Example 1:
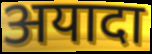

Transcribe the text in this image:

अयादा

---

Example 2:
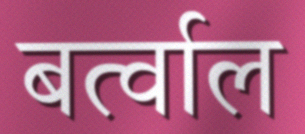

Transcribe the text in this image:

बर्त्वाल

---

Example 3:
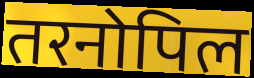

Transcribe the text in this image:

तरनोपिल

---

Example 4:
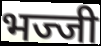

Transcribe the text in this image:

भज्जी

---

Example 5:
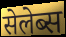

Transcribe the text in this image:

सेलेब्स